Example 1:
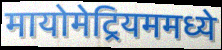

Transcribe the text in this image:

मायोमेट्रियममध्ये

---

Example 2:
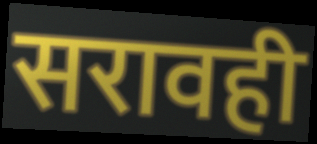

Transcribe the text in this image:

सरावही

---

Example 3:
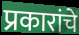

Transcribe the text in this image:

प्रकारांचे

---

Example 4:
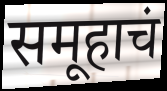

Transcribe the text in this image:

समूहाचं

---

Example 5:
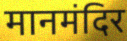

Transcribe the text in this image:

मानमंदिर